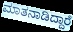
ಮಾತನಾಡಿದ್ದಾರೆ